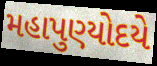
મહાપુણ્યોદયે